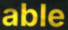
able